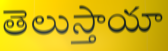
తెలుస్తాయా